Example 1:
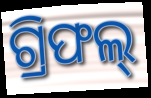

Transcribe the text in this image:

ଗ୍ରିଫଲ୍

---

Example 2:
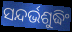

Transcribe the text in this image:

ସନ୍ଦର୍ଭଶୁଦ୍ଧିଂ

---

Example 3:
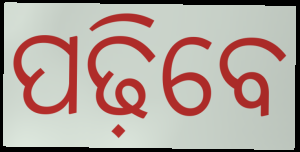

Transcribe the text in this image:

ପଢ଼ିବେ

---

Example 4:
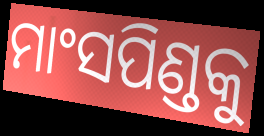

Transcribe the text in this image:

ମାଂସପିଣ୍ଡକୁ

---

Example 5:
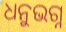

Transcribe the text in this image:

ଧନୁଭଗ୍ନ